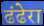
ढंढेरा